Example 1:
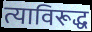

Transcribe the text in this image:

त्याविरूद्ध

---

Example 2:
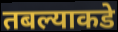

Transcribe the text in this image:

तबल्याकडे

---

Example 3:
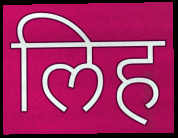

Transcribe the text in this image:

लिह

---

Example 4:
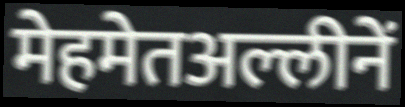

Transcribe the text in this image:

मेहमेतअल्लीनें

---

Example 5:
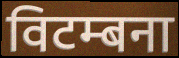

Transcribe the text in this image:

विटम्बना